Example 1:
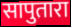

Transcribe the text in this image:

सापुतारा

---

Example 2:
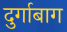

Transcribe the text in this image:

दुर्गाबाग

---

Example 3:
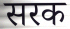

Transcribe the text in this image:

सरक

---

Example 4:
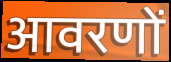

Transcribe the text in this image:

आवरणों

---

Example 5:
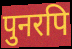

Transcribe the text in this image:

पुनरपि